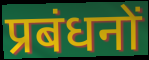
प्रबंधनों